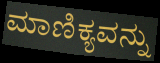
ಮಾಣಿಕ್ಯವನ್ನು